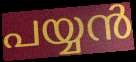
പയ്യൻ